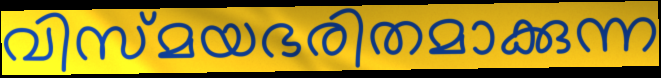
വിസ്മയഭരിതമാക്കുന്ന